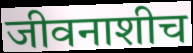
जीवनाशीच